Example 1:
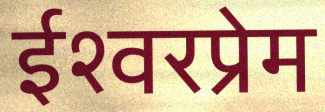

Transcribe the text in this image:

ईश्वरप्रेम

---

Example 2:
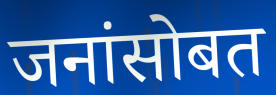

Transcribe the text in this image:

जनांसोबत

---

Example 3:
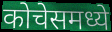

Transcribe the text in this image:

कोचेसमध्ये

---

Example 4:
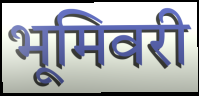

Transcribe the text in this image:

भूमिवरी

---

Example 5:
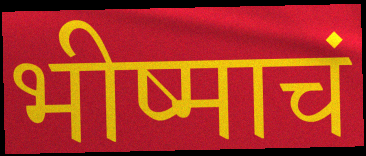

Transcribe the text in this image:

भीष्माचं